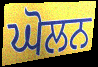
ਘੋਲਨ